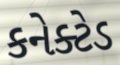
કનેક્ટેડ